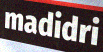
madidri